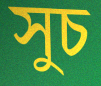
সুচ